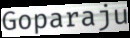
Goparaju